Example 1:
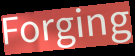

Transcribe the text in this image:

Forging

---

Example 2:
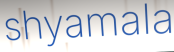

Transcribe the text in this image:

shyamala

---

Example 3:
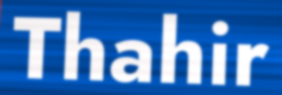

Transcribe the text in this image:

Thahir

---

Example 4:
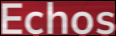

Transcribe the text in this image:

Echos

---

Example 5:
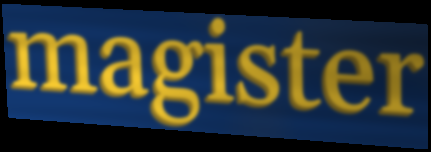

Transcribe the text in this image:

magister